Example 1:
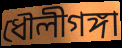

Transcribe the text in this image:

ধৌলীগঙ্গা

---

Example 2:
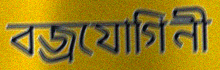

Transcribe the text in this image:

বজ্ৰযোগিনী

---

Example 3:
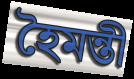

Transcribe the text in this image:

হৈমন্তী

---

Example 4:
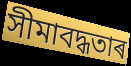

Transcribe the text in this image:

সীমাবদ্ধতাৰ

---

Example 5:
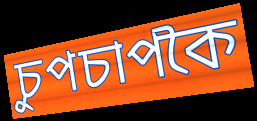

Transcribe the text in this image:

চুপচাপকৈ